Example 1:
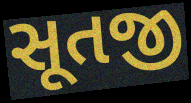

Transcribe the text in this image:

સૂતજી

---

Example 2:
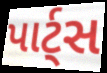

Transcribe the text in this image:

પાર્ટ્સ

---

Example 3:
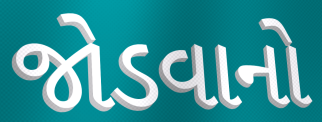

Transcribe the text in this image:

જોડવાનો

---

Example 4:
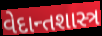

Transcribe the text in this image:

વેદાન્તશાસ્ત્ર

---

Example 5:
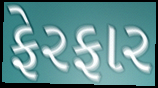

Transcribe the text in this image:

ફેરફાર